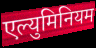
एल्युमिनियम